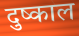
दुष्काल